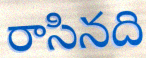
రాసినది